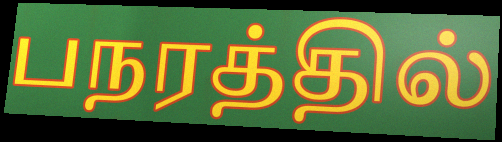
பநரத்தில்